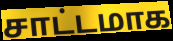
சாட்டமாக